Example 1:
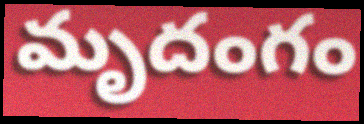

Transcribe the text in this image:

మృదంగం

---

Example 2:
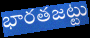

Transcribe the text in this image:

భారతజట్టు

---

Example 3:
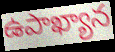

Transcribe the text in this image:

ఉపాఖ్యాన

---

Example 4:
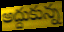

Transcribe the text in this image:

అద్దుకున్న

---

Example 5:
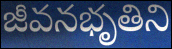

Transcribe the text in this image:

జీవనభృతిని